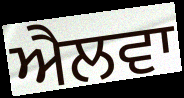
ਐਲਵਾ